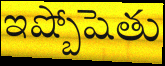
ఇష్బోషెతు